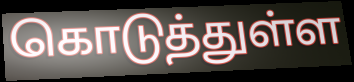
கொடுத்துள்ள